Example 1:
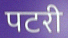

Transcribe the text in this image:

पटरी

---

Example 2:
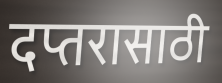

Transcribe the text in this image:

दप्तरासाठी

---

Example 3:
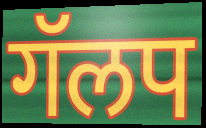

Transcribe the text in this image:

गॅलप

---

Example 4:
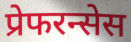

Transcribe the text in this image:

प्रेफरन्सेस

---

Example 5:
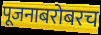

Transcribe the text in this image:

पूजनाबरोबरच